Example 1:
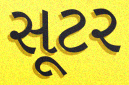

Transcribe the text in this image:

સૂટર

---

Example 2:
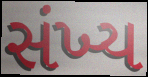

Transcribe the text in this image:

સંખ્ય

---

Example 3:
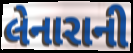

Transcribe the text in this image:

લેનારાની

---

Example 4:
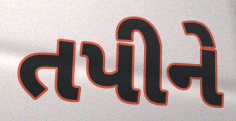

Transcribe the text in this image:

તપીને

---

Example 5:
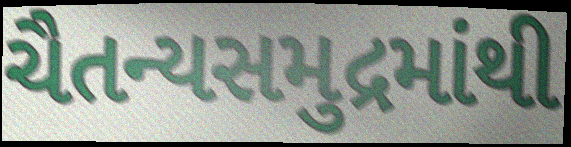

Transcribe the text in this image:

ચૈતન્યસમુદ્રમાંથી